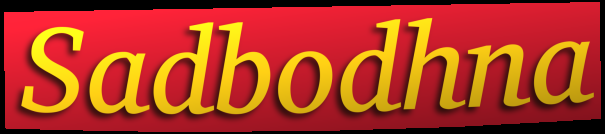
Sadbodhna